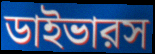
ডাইভারস